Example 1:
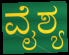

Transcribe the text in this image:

ವೈಶ್ಯ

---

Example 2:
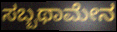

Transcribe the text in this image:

ಸಬ್ಬಥಾಮೇನ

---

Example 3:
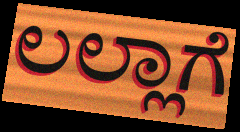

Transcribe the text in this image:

ಲಲ್ಲಾಗೆ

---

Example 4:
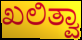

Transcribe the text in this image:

ಖಲಿತ್ವಾ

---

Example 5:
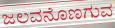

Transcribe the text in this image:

ಜಲವನೊಣಗುವ